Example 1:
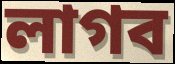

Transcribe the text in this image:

লাগব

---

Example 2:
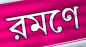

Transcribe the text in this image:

রমণে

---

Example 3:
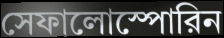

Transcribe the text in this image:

সেফালোস্পোরিন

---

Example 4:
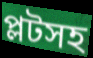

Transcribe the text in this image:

প্লটসহ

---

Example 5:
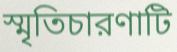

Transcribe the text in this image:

স্মৃতিচারণাটি